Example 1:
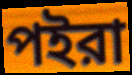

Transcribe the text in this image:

পইরা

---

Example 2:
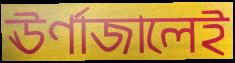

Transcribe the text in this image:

ঊর্ণাজালেই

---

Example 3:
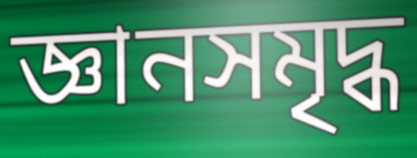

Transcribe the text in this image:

জ্ঞানসমৃদ্ধ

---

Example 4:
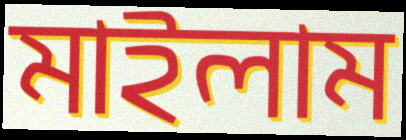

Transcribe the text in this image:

মাইলাম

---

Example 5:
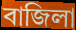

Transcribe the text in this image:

বাজিলা